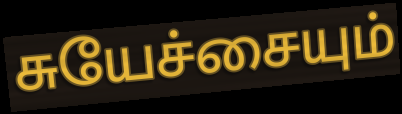
சுயேச்சையும்